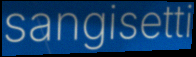
sangisetti